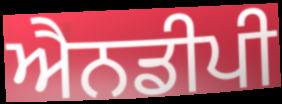
ਐਨਡੀਪੀ